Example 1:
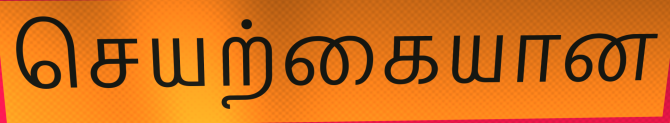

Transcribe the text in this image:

செயற்கையான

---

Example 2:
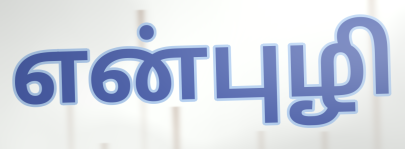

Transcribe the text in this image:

என்புழி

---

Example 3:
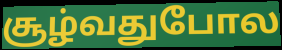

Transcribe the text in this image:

சூழ்வதுபோல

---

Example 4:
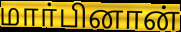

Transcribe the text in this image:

மார்பினான்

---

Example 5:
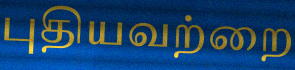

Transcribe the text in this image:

புதியவற்றை